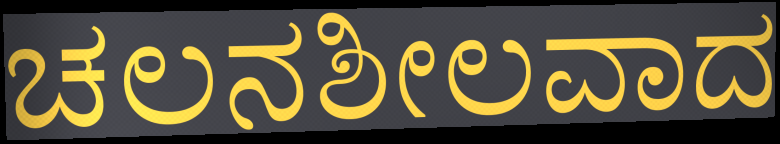
ಚಲನಶೀಲವಾದ